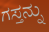
ಗಸ್ತನ್ನು